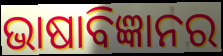
ଭାଷାବିଜ୍ଞାନର